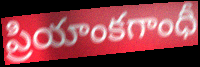
ప్రియాంకగాంధీ